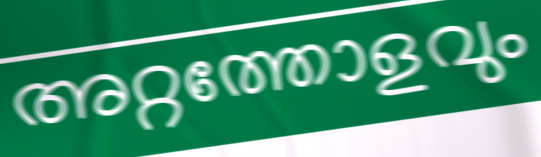
അറ്റത്തോളവും